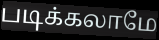
படிக்கலாமே